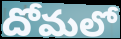
దోమలో